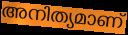
അനിത്യമാണ്